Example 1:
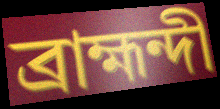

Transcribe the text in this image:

ব্রাহ্মন্দী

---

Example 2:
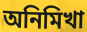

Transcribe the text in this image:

অনিমিখা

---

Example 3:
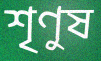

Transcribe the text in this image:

শৃণুষ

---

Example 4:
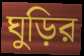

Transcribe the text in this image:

ঘুড়ির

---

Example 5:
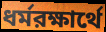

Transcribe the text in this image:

ধর্মরক্ষার্থে